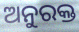
ଅନୁରକ୍ତ